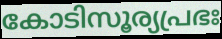
കോടിസൂര്യപ്രഭഃ